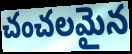
చంచలమైన